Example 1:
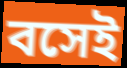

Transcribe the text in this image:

বসেই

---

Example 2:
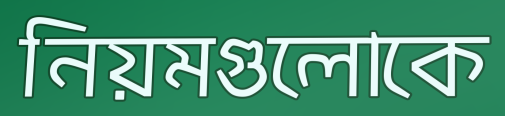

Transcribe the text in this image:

নিয়মগুলোকে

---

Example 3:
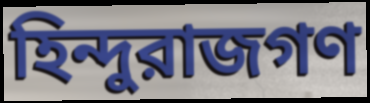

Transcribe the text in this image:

হিন্দুরাজগণ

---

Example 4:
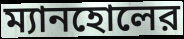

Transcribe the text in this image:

ম্যানহোলের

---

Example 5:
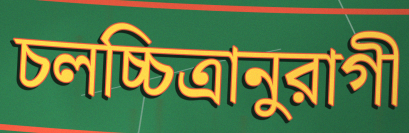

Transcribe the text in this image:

চলচ্চিত্রানুরাগী